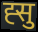
ह्सु